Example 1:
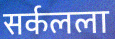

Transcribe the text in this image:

सर्कलला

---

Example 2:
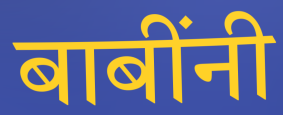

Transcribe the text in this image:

बाबींनी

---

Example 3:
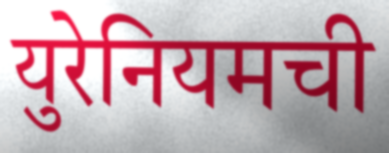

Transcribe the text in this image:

युरेनियमची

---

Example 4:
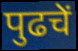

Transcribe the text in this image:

पुढचें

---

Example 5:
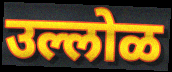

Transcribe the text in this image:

उल्लोळ